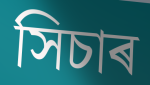
সিচাৰ